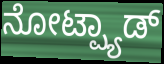
ನೋಟ್ಪ್ಯಾಡ್